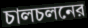
চালচলনের